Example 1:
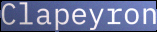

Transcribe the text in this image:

Clapeyron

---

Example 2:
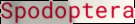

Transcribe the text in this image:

Spodoptera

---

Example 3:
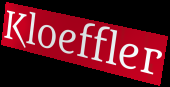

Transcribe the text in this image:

Kloeffler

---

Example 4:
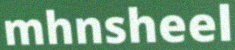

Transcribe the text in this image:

mhnsheel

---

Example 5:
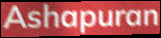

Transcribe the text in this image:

Ashapuran